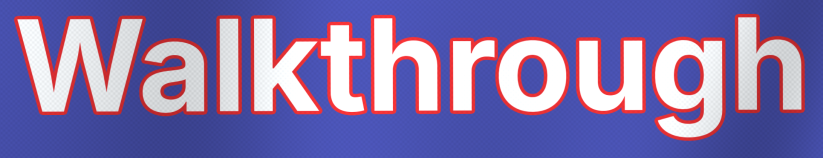
Walkthrough